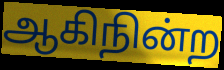
ஆகிநின்ற